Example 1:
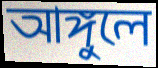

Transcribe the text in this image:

আঙ্গুলে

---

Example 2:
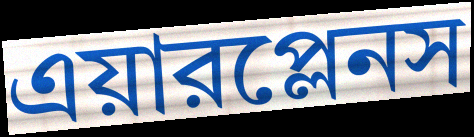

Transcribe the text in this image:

এয়ারপ্লেনস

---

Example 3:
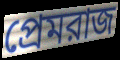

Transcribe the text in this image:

প্রেমরাজ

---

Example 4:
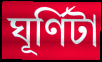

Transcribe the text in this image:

ঘূর্ণিটা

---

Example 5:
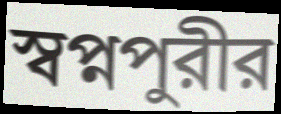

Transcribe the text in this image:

স্বপ্নপুরীর